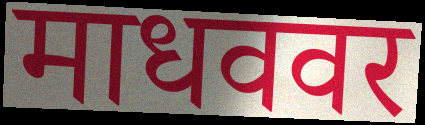
माधववर